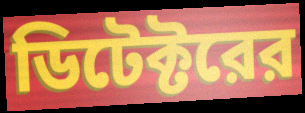
ডিটেক্টরের